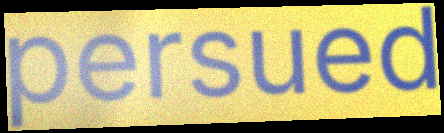
persued